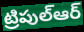
ట్రిపుల్ఆర్